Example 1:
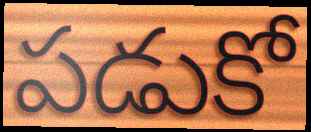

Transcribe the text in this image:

పడుకో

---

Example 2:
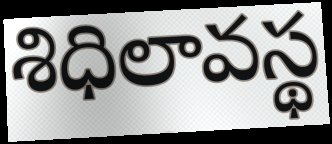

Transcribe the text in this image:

శిధిలావస్థ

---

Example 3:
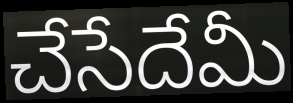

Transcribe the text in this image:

చేసేదేమీ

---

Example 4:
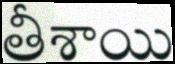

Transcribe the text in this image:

తీశాయి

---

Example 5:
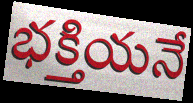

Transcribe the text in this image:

భక్తియనే